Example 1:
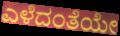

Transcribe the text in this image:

ಎಳೆದಂತೆಯೇ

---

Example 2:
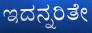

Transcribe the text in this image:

ಇದನ್ನರಿತೇ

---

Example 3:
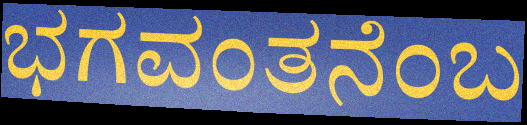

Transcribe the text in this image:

ಭಗವಂತನೆಂಬ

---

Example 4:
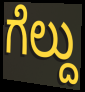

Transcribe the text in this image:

ಗೆಲ್ದು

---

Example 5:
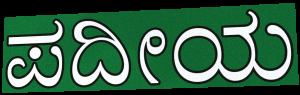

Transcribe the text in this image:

ಪದೀಯ